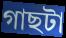
গাছটা